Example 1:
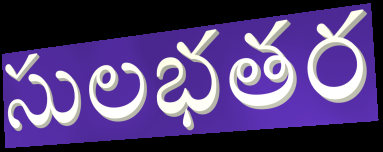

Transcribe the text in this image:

సులభతర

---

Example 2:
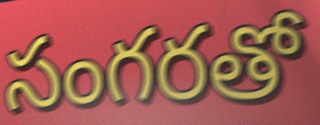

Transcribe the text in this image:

సంగరతో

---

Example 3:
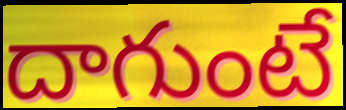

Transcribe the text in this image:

దాగుంటే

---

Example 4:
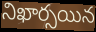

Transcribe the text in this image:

నిఖార్సయిన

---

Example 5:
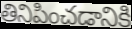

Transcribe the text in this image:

తినిపించడానికి